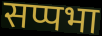
सप्पभा